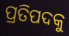
ପ୍ରତିପଦକୁ